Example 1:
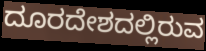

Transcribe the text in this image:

ದೂರದೇಶದಲ್ಲಿರುವ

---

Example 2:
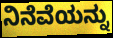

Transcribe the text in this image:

ನಿನೆವೆಯನ್ನು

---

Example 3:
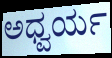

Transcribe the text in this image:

ಅಧ್ವರ್ಯ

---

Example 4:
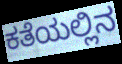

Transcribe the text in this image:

ಕತೆಯಲ್ಲಿನ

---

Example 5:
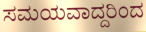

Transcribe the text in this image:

ಸಮಯವಾದ್ದರಿಂದ